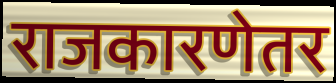
राजकारणेतर